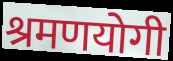
श्रमणयोगी